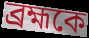
ব্রহ্মকে